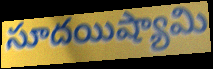
సూదయిష్యామి